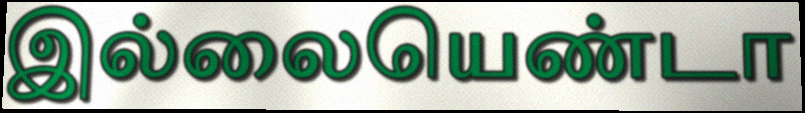
இல்லையெண்டா